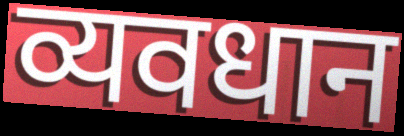
व्यवधान